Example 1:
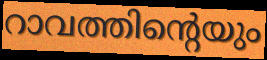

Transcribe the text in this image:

റാവത്തിന്റെയും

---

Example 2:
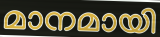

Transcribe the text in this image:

മാനമായി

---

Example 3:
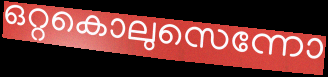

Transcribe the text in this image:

ഒറ്റകൊലുസെന്നോ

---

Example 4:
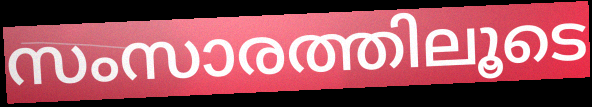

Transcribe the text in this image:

സംസാരത്തിലൂടെ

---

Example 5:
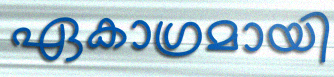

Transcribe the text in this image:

ഏകാഗ്രമായി